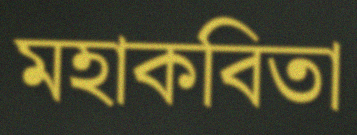
মহাকবিতা